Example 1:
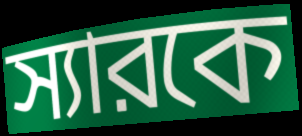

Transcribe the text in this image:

স্যারকে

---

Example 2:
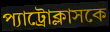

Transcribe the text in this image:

প্যাট্রোক্লাসকে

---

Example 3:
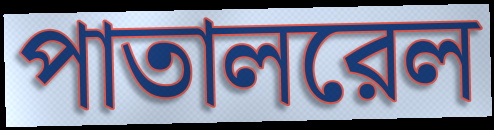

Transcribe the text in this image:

পাতালরেল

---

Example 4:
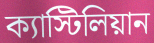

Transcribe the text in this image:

ক্যাস্টিলিয়ান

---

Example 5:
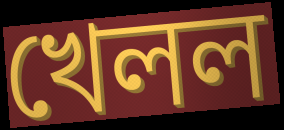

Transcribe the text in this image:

খেলল